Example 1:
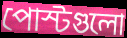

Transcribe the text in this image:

পোস্টগুলো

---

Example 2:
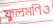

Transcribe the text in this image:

ফুলমণিও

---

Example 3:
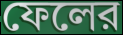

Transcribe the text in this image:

ফেলের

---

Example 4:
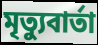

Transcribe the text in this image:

মৃত্যুবার্তা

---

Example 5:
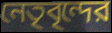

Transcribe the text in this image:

নেতৃবৃন্দের